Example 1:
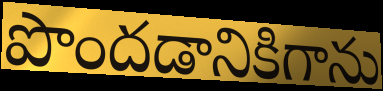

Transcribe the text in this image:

పొందడానికిగాను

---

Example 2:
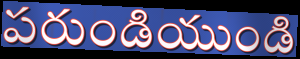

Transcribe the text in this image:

పరుండియుండి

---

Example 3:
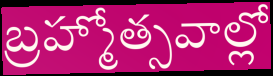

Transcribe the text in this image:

బ్రహ్మోత్సవాల్లో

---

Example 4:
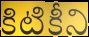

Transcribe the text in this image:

కిటికీని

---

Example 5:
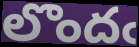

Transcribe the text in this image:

లొందఁ